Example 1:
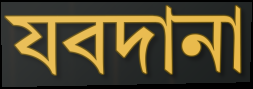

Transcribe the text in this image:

যবদানা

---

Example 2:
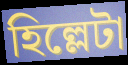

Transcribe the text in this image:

হিল্লেটা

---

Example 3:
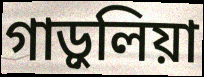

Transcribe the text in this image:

গাড়ুলিয়া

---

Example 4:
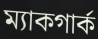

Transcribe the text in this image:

ম্যাকগার্ক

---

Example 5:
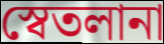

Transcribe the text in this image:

স্বেতলানা